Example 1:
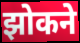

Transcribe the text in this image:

झोकने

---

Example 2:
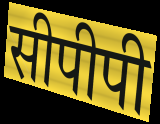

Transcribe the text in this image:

सीपीपी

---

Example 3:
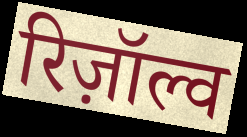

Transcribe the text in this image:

रिज़ॉल्व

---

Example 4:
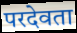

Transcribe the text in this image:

परदेवता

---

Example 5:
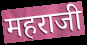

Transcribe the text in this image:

महराजी